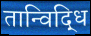
तान्विद्धि